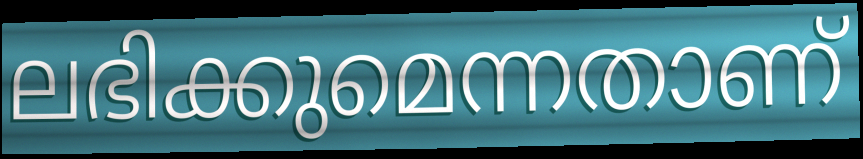
ലഭിക്കുമെന്നതാണ്